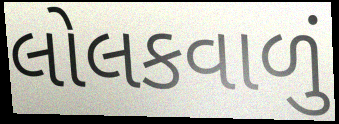
લોલકવાળું